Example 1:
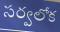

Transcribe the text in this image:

సర్వలోక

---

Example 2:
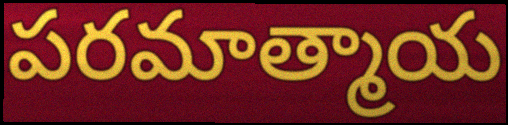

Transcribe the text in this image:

పరమాత్మాయ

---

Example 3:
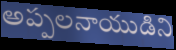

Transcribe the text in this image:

అప్పలనాయుడిని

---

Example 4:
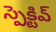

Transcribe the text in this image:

స్పెక్టివ్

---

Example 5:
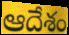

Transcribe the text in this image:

ఆదేశం